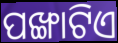
ପଙ୍ଖାଟିଏ